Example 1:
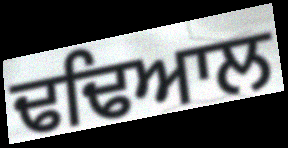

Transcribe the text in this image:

ਢਢਿਆਲ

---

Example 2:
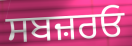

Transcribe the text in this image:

ਸਬਜ਼ਰਓ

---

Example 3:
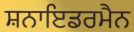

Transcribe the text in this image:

ਸ਼ਨਾਇਡਰਮੈਨ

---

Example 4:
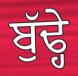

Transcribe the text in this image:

ਬੁੱਢ੍ਹੇ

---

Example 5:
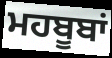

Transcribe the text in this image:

ਮਹਬੂਬਾਂ